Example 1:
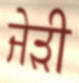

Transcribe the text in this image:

ਜੇੜੀ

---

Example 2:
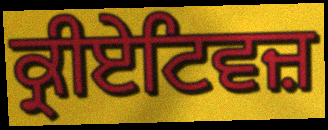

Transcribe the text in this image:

ਕ੍ਰੀਏਟਿਵਜ਼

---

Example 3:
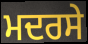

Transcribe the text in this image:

ਮਦਰਸੇ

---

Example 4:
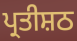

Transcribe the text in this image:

ਪ੍ਰਤੀਸ਼ਠ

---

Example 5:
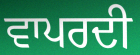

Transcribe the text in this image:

ਵਾਪਰਦੀ